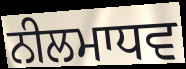
ਨੀਲਮਾਧਵ